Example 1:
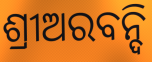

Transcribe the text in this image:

ଶ୍ରୀଅରବନ୍ଦି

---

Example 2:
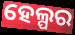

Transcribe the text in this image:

ହେଲ୍ପର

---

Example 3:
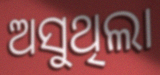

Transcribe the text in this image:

ଅସୁଥିଲା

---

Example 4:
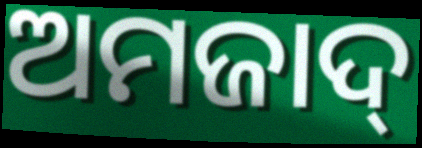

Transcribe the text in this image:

ଅମଜାଦ୍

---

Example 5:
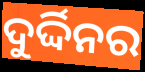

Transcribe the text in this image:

ଦୁର୍ଦ୍ଦିନର